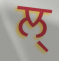
ਲ੍